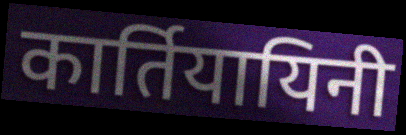
कार्तियायिनी